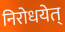
निरोधयेत्